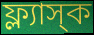
ফ্ল্যাস্‌ক